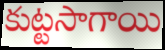
కుట్టసాగాయి